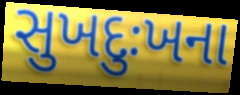
સુખદુઃખના